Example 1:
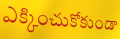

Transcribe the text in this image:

ఎక్కించుకోకుండా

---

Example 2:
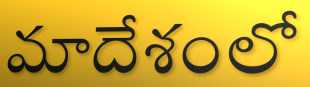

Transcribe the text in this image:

మాదేశంలో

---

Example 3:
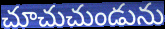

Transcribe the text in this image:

చూచుచుండును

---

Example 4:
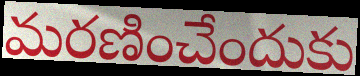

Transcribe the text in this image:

మరణించేందుకు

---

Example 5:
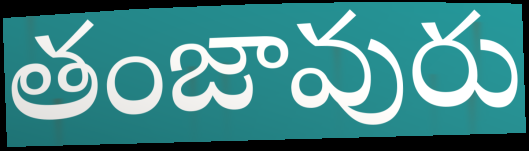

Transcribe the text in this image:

తంజావురు